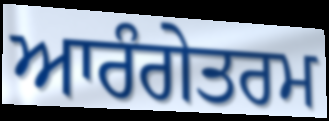
ਆਰੰਗੇਤਰਮ